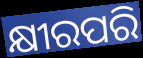
କ୍ଷୀରପରି